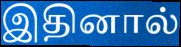
இதினால்